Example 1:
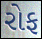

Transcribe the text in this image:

રોફ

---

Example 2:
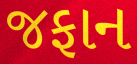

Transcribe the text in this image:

જફાન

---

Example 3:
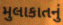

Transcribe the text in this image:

મુલાકાતનું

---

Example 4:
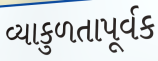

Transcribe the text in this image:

વ્યાકુળતાપૂર્વક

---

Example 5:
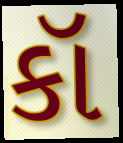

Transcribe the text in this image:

કૉ